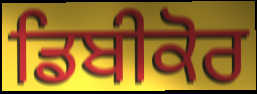
ਡਿਬੀਕੋਰ